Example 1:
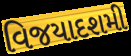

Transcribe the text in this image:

વિજયાદશમી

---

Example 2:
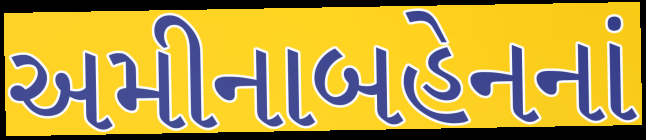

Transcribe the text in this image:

અમીનાબહેનનાં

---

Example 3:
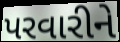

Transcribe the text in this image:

પરવારીને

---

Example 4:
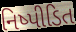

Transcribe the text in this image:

નિષ્પીડિત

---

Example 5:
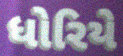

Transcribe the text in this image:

ધોરિયે